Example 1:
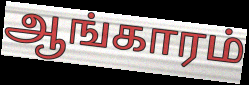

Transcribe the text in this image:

ஆங்காரம்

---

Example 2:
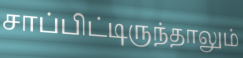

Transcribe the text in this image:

சாப்பிட்டிருந்தாலும்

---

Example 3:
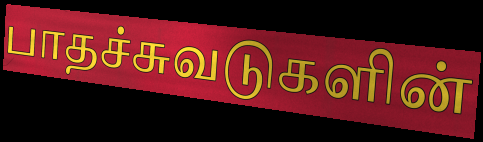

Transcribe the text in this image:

பாதச்சுவடுகளின்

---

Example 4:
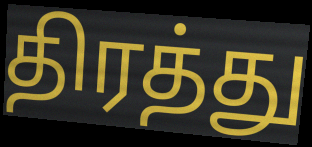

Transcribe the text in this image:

திரத்து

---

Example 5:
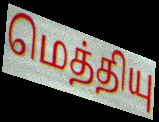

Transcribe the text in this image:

மெத்தியு